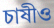
চাষীও